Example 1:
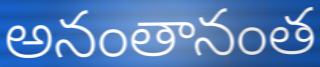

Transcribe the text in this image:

అనంతానంత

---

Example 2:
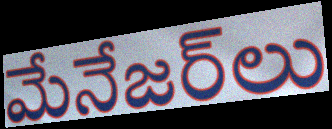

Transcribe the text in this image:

మేనేజర్‌లు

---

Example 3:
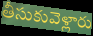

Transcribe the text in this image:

తీసుకువెళ్లారు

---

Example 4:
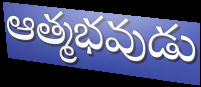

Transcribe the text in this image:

ఆత్మభవుడు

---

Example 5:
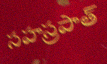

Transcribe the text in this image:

సహస్రపాత్